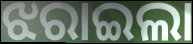
ଝରାଇଲା